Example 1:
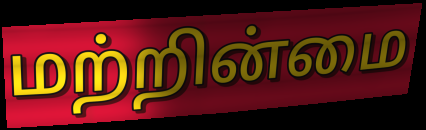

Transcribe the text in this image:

மற்றின்மை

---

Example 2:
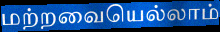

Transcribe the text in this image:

மற்றவையெல்லாம்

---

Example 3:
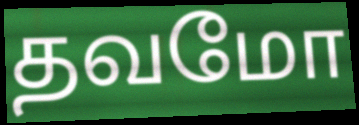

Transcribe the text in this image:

தவமோ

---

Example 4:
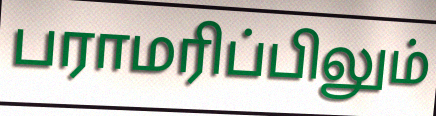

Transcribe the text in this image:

பராமரிப்பிலும்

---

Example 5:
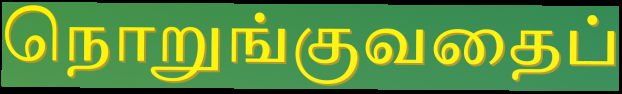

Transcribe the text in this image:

நொறுங்குவதைப்